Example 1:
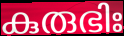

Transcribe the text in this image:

കുരുഭിഃ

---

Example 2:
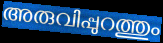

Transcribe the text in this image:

അരുവിപ്പുറത്തും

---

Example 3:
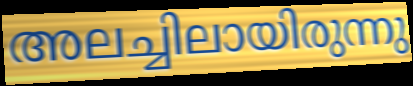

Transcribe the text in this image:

അലച്ചിലായിരുന്നു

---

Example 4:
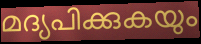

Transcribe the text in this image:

മദ്യപിക്കുകയും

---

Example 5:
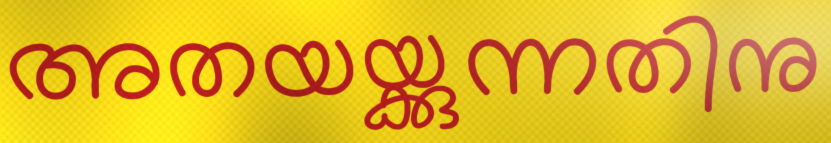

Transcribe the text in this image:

അതയയ്ക്കുന്നതിനു